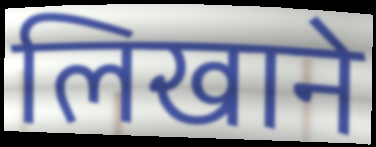
लिखाने